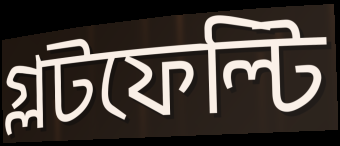
গ্লটফেল্টি